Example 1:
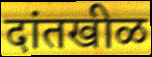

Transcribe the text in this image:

दांतखीळ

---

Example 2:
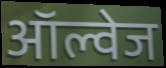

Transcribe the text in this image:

ऑल्वेज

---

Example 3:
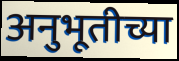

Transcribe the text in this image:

अनुभूतीच्या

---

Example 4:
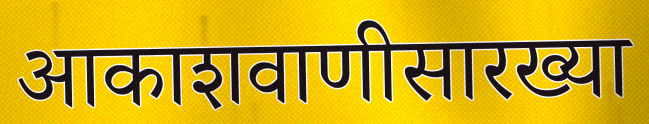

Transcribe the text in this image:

आकाशवाणीसारख्या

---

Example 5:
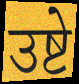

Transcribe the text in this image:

उष्टे